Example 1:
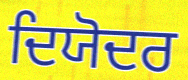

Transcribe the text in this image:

ਦਿਯੋਦਰ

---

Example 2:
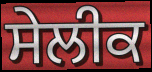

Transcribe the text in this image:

ਸੇਲੀਕ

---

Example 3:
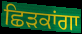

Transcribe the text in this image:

ਛਿੜਕਾਂਗਾ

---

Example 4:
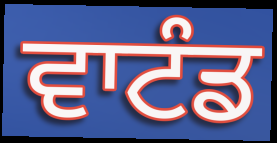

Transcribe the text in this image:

ਵਾਟੰਡ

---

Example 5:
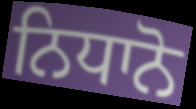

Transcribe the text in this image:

ਨਿਧਾਨੋ